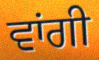
ਵਾਂਗੀ